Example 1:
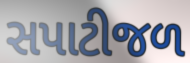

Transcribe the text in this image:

સપાટીજળ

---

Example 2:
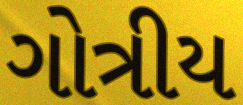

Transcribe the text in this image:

ગોત્રીય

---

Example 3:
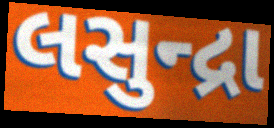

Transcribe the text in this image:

લસુન્દ્રા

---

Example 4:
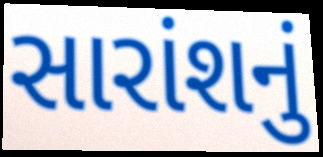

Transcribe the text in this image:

સારાંશનું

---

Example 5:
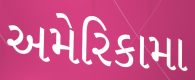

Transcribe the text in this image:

અમેરિકામા